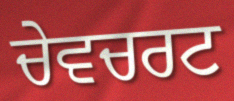
ਚੇਵਚਰਟ